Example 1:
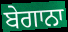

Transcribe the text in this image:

ਬੇਗਾਨਾ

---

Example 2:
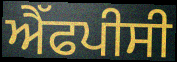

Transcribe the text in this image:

ਐੱਫਪੀਸੀ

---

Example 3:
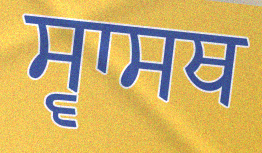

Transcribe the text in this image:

ਸ੍ਵਾਸਥ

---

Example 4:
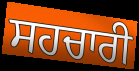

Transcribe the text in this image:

ਸਹਚਾਰੀ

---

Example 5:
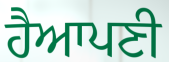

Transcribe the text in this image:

ਹੈਆਪਣੀ